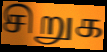
சிறுக